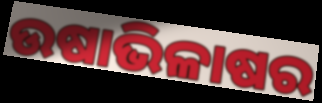
ଉଷାଭିଳାଷର